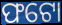
ଫଟୋ